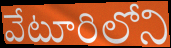
వేటూరిలోని